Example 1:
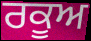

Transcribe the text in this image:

ਰਕੂਅ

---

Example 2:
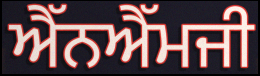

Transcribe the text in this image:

ਐੱਨਐੱਮਜੀ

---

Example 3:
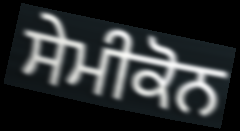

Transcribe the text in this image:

ਸੇਮੀਕੋਨ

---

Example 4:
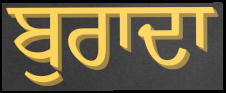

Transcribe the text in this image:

ਬੁਰਾਦਾ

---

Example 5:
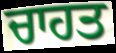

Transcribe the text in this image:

ਚਾਹਤ